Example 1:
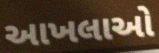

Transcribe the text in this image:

આખલાઓ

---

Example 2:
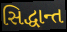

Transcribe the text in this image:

સિદ્ધાન્ત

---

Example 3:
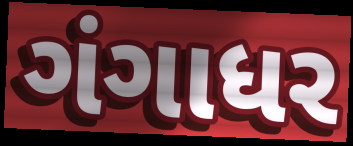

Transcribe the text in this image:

ગંગાધર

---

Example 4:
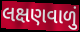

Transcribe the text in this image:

લક્ષણવાળું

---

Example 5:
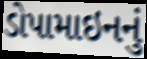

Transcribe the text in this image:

ડોપામાઇનનું